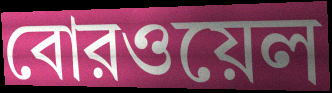
বোরওয়েল